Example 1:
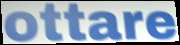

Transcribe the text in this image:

ottare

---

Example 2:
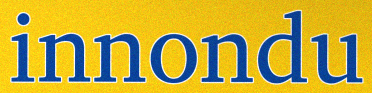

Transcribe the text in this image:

innondu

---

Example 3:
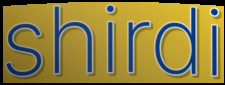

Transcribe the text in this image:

shirdi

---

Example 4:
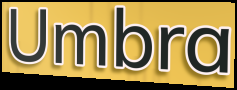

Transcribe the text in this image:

Umbra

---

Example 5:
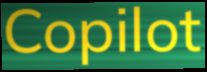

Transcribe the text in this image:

Copilot